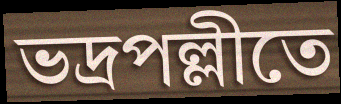
ভদ্রপল্লীতে